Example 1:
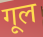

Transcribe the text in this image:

गूल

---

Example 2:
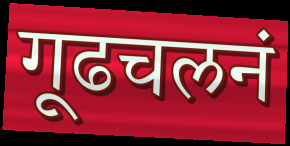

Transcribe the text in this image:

गूढचलनं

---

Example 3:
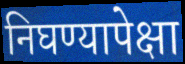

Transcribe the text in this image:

निघण्यापेक्षा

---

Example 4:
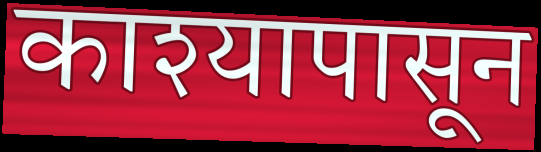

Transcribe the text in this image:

काश्यापासून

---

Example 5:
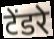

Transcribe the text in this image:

टेंडरे